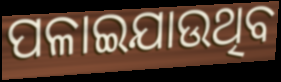
ପଳାଇଯାଉଥିବ